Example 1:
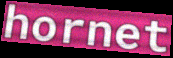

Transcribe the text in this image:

hornet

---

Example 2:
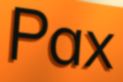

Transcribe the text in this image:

Pax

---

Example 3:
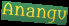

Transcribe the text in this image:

Anangu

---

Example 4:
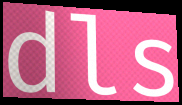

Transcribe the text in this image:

dls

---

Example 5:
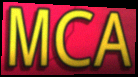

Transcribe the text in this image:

MCA